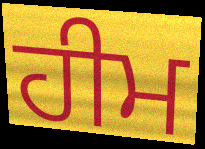
ਹੀਮ